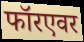
फॉरएवर